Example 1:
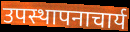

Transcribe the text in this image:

उपस्थापनाचार्य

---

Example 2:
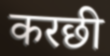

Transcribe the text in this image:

करछी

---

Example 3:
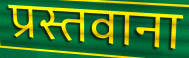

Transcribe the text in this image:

प्रस्तवाना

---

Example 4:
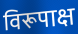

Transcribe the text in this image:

विरूपाक्ष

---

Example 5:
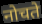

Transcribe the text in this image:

नोचते